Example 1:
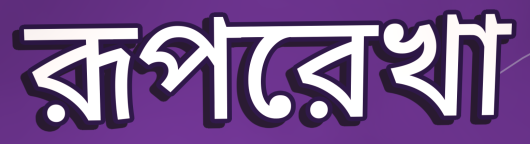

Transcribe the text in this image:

রূপরেখা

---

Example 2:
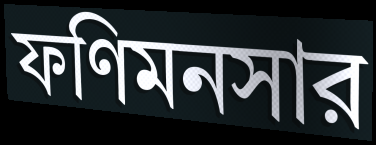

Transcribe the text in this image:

ফণিমনসার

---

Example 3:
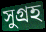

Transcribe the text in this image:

সুগ্রহ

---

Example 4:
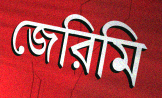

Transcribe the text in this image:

জেরিমি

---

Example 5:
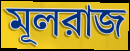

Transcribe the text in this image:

মূলরাজ